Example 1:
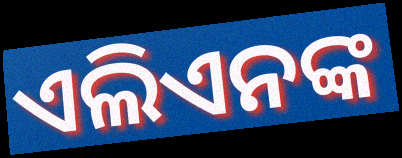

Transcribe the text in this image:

ଏଲିଏନଙ୍କ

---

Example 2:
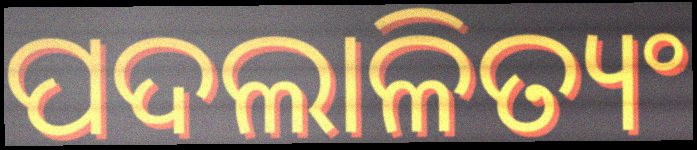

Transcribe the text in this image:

ପଦଲାଳିତ୍ୟଂ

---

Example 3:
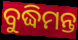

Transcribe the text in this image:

ବୁଦ୍ଧିମନ୍ତ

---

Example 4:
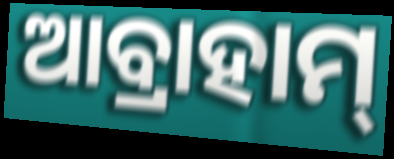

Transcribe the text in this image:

ଆବ୍ରାହାମ୍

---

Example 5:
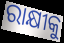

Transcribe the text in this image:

ରାକ୍ଷୀକୁ